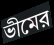
ভীমের